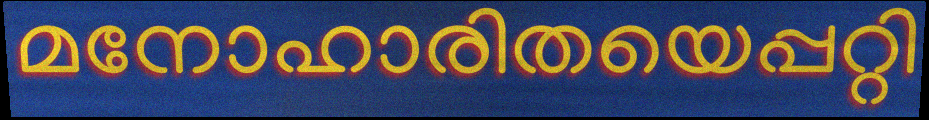
മനോഹാരിതയെപ്പറ്റി